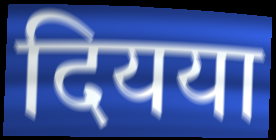
दियया